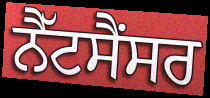
ਨੈੱਟਸੈਂਸਰ